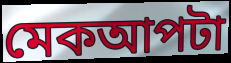
মেকআপটা